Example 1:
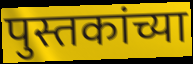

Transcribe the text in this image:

पुस्तकांच्या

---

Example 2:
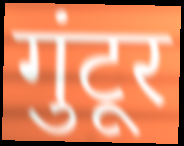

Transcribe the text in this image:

गुंटूर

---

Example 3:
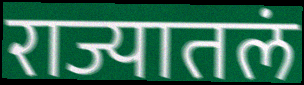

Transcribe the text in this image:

राज्यातलं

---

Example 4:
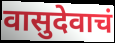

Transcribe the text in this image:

वासुदेवाचं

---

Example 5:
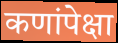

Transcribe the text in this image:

कणांपेक्षा